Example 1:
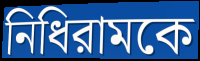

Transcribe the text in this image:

নিধিরামকে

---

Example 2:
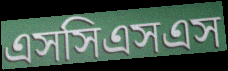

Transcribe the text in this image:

এসসিএসএস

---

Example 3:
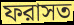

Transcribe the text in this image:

ফরাসত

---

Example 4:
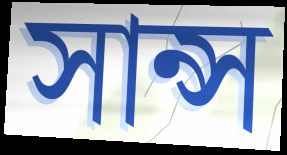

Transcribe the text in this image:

সান্স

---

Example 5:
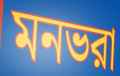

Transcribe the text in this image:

মনভরা